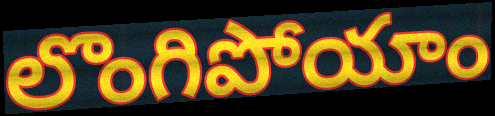
లొంగిపోయాం